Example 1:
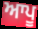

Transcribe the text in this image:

ਆਪੂ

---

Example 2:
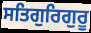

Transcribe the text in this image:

ਸਤਿਗੁਰਿਗੁਰੂ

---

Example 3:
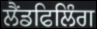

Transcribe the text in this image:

ਲੈਂਡਫਿਲਿੰਗ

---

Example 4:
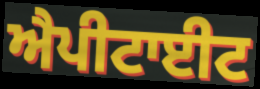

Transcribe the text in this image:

ਐਪੀਟਾਈਟ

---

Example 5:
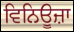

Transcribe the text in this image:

ਵਿਨਿਊਜ਼ਾ